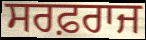
ਸਰਫ਼ਰਾਜ